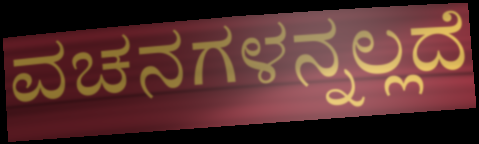
ವಚನಗಳನ್ನಲ್ಲದೆ